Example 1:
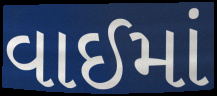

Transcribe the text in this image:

વાઈમાં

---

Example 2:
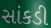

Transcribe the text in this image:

સાંકડી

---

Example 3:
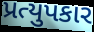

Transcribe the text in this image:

પ્રત્યુપકાર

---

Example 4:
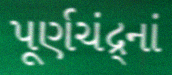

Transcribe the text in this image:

પૂર્ણચંદ્ર્નાં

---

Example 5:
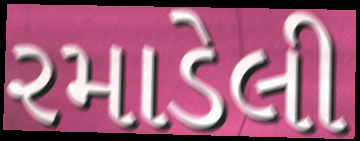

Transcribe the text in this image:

રમાડેલી